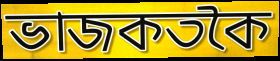
ভাজকতকৈ